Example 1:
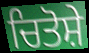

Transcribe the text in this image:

ਚਿਤੋਸ਼ੇ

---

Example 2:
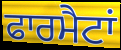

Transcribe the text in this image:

ਫਾਰਮੈਟਾਂ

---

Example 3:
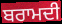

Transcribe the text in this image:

ਬਰਾਮਦੀ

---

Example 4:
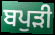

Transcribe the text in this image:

ਬਪੁੜੀ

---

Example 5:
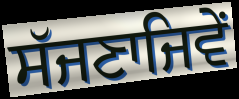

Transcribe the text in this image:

ਸੱਜਣਾਜਿਵੇਂ